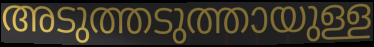
അടുത്തടുത്തായുള്ള